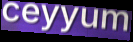
ceyyum